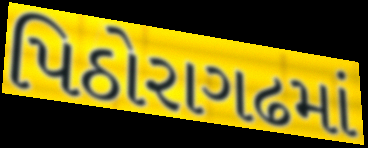
પિઠોરાગઢમાં